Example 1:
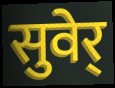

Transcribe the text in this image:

सुवेर्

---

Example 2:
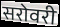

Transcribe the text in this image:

सरोवरी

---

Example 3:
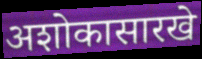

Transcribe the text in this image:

अशोकासारखे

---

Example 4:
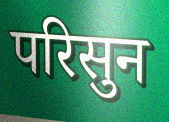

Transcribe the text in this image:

परिसुन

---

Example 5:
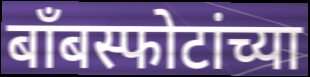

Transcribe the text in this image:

बॉंबस्फोटांच्या